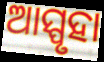
ଆସ୍ପୃହା